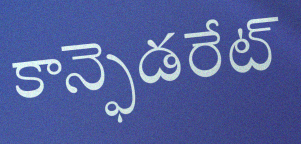
కాన్ఫెడరేట్